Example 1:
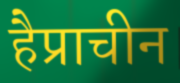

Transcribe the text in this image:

हैप्राचीन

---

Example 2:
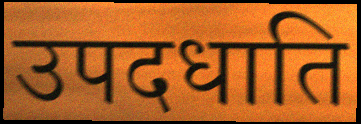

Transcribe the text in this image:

उपदधाति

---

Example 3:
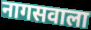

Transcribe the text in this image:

नागसवाला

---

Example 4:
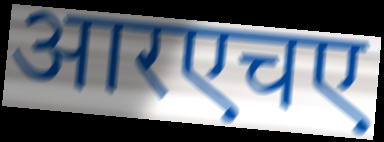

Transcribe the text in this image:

आरएचए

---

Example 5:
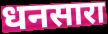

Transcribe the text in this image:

धनसारा